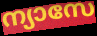
ന്യാസേ